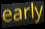
early